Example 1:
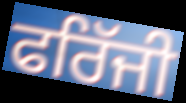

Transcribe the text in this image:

ਫਰਿੱਜੀ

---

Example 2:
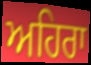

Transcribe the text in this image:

ਅਹਿਰਾ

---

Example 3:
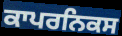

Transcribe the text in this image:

ਕਾਪਰਨਿਕਸ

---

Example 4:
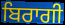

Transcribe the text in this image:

ਬਿਰਾਗੀ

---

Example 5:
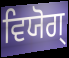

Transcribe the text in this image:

ਵਿਯੋਗ੍